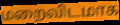
மறைவிடமாக